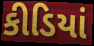
કીડિયાં